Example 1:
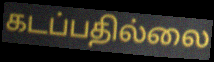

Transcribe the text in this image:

கடப்பதில்லை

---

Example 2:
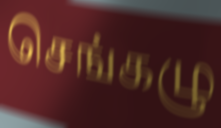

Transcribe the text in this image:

செங்கழு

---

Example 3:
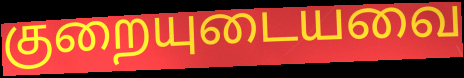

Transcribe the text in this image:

குறையுடையவை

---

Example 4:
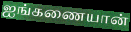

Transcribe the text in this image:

ஐங்கணையான்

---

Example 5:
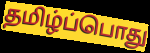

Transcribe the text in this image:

தமிழ்ப்பொது